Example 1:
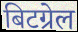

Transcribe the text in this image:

बिटग्रेल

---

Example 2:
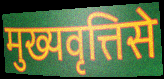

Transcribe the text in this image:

मुख्यवृत्तिसे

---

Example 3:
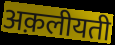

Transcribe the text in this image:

अक़लीयती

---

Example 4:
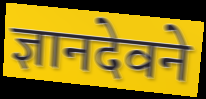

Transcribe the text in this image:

ज्ञानदेवने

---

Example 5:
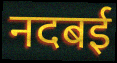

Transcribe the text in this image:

नदबई